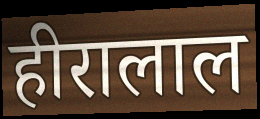
हीरालाल